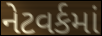
નેટવર્કમાં